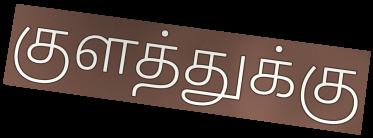
குளத்துக்கு